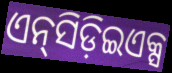
ଏନ୍‍ସିଡ଼ିଇଏକ୍ସ